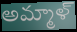
అమ్మాళ్